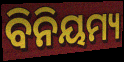
ବିନିୟମ୍ୟ